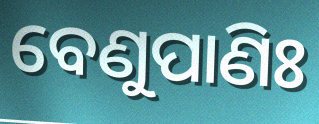
ବେଣୁପାଣିଃ